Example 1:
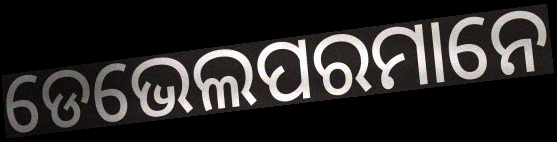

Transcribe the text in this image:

ଡେଭେଲପରମାନେ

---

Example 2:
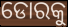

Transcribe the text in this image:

ଡୋରକୁ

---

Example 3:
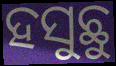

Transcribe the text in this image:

ହସୁଛୁ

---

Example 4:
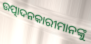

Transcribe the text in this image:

ଉତ୍ପାଦନକାରୀମାନଙ୍କୁ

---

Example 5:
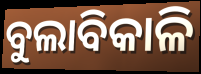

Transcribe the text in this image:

ବୁଲାବିକାଳି